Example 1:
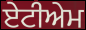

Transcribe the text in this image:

ਏਟੀਅੇਮ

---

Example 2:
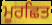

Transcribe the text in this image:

ਮੂਰਛਿਤ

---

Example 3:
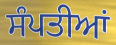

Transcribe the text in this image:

ਸੰਪਤੀਆਂ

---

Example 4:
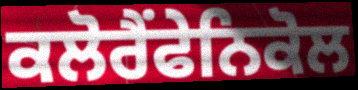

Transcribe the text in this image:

ਕਲੋਰੈਂਫੇਨਿਕੋਲ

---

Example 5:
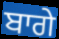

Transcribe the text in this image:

ਬਾਗੇ